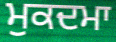
ਮੁਕਦਮਾ